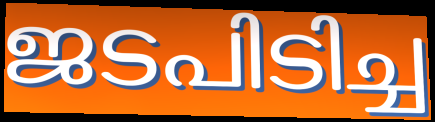
ജടപിടിച്ച